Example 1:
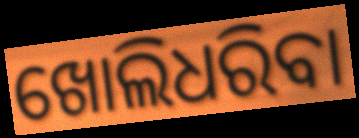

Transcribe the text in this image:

ଖୋଲିଧରିବା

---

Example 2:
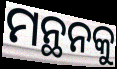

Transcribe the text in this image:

ମନ୍ଥନକୁ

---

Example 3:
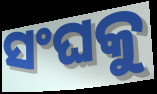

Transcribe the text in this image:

ସଂଘକୁ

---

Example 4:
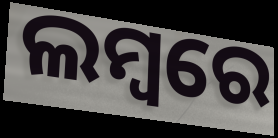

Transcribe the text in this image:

ଲମ୍ବରେ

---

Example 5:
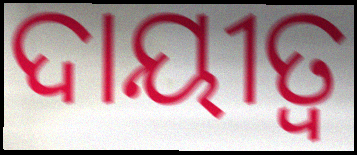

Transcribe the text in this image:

ଦାୟୀତ୍ୱ